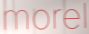
morel